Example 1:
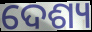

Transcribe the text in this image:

ଦେଶ୍ୟ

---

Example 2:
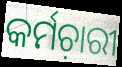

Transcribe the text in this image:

କର୍ମଚ଼ାରୀ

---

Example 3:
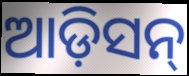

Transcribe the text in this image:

ଆଡ଼ିସନ୍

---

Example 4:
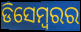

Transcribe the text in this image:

ଡିସେମ୍ୱରର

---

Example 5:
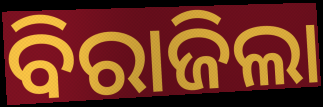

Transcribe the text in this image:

ବିରାଜିଲା